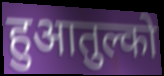
हुआतुल्को